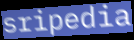
sripedia